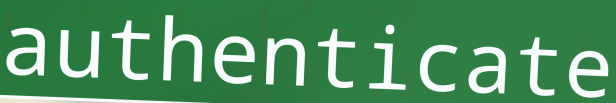
authenticate